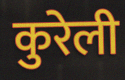
कुरेली